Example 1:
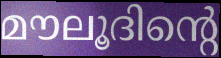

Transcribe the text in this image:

മൗലൂദിന്റെ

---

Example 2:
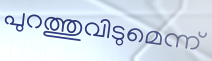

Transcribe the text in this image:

പുറത്തുവിടുമെന്ന്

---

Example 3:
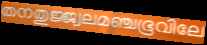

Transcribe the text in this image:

തനതുജ്ജ്വലമഞ്ചഭൂവിലേ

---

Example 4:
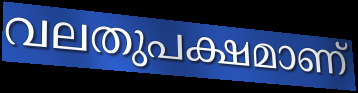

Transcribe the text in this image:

വലതുപക്ഷമാണ്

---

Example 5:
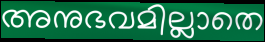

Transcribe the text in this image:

അനുഭവമില്ലാതെ